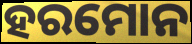
ହରମୋନ